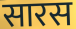
सारस